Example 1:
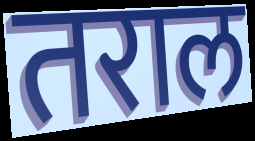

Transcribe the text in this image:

तराल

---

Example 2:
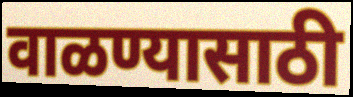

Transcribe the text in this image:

वाळण्यासाठी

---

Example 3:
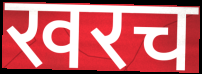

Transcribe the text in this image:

खरच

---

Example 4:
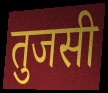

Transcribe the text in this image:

तुजसी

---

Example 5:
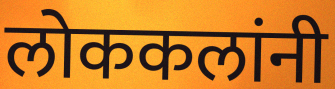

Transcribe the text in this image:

लोककलांनी